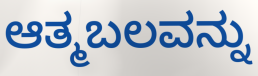
ಆತ್ಮಬಲವನ್ನು